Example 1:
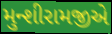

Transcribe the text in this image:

મુન્શીરામજીએ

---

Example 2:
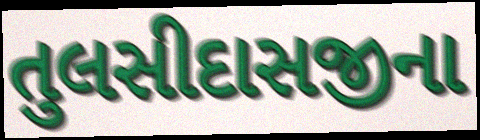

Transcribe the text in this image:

તુલસીદાસજીના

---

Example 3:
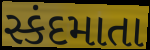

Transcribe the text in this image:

સ્કંદમાતા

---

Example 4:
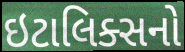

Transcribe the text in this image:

ઇટાલિક્સનો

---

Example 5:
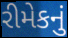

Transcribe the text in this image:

રીમેકનું